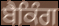
ਬੈਕਿੰਗ